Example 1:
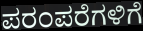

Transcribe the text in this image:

ಪರಂಪರೆಗಳಿಗೆ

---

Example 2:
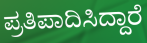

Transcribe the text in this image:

ಪ್ರತಿಪಾದಿಸಿದ್ದಾರೆ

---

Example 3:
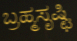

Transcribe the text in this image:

ಬ್ರಹ್ಮಸೃಷ್ಟಿ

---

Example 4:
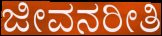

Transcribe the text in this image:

ಜೀವನರೀತಿ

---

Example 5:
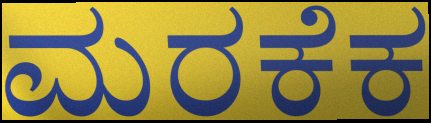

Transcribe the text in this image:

ಮರಕೆಕ